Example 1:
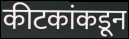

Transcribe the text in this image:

कीटकांकडून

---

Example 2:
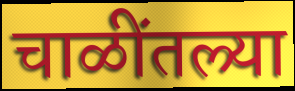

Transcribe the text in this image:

चाळींतल्या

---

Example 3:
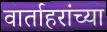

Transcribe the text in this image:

वार्ताहरांच्या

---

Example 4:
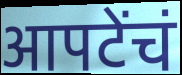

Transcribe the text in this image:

आपटेंचं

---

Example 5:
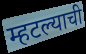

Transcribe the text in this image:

म्हटल्याची